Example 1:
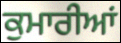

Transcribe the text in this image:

ਕੁਮਾਰੀਆਂ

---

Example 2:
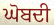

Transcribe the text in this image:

ਘੋਬਦੀ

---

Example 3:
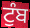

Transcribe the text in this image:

ਟੁੰਬ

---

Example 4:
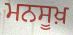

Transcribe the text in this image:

ਮਨਸੂਖ਼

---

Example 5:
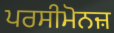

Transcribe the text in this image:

ਪਰਸੀਮੋਨਜ਼